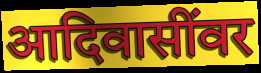
आदिवासींवर